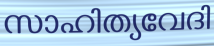
സാഹിത്യവേദി